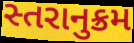
સ્તરાનુક્રમ